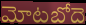
మోటబోదె